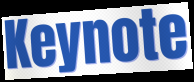
Keynote